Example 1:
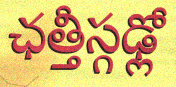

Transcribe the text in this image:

ఛత్తీస్గఢ్లో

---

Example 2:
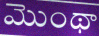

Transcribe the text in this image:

మొంథా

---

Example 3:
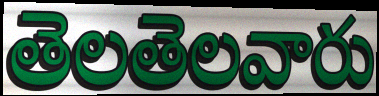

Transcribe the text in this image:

తెలతెలవారు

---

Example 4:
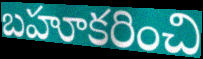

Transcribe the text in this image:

బహూకరించి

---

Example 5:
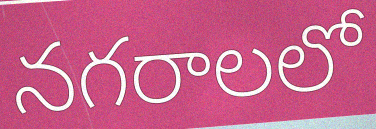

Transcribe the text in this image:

నగరాలలో